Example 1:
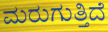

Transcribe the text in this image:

ಮರುಗುತ್ತಿದೆ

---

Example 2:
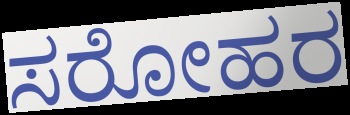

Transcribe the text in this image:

ಸರೋಹರ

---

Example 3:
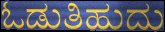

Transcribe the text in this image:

ಓಡುತಿಹುದು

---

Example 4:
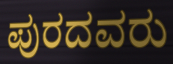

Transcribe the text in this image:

ಪುರದವರು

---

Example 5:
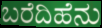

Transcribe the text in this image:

ಬರೆದಿಹೆನು